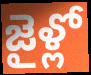
జైళ్లో